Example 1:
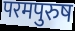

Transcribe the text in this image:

परमपुरुष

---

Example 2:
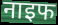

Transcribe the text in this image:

नाइफ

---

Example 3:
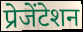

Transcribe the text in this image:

प्रेजेंटेशन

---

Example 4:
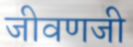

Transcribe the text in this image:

जीवणजी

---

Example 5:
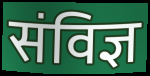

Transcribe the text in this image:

संविज्ञ